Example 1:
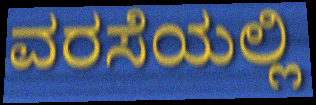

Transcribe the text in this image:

ವರಸೆಯಲ್ಲಿ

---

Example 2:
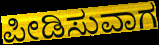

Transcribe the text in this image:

ಪೀಡಿಸುವಾಗ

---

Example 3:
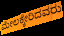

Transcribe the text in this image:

ಮೇಲಕ್ಕೇರಿದವರು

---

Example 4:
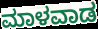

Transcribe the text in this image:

ಮಾಳವಾಡ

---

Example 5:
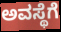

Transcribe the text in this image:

ಅವಸ್ಥೆಗೆ